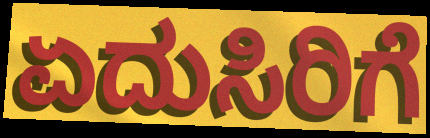
ಏದುಸಿರಿಗೆ